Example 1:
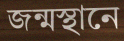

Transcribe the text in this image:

জন্মস্থানে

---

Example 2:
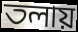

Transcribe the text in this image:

তলায়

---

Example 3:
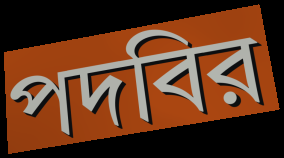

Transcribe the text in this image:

পদবির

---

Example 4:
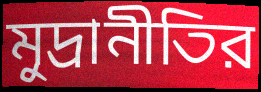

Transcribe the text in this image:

মুদ্রানীতির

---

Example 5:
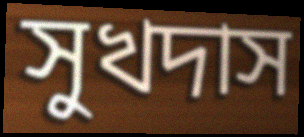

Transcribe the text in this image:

সুখদাস